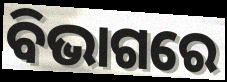
ବିଭାଗରେ